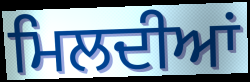
ਮਿਲਦੀਆਂ